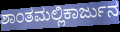
ಶಾಂತಮಲ್ಲಿಕಾರ್ಜುನ